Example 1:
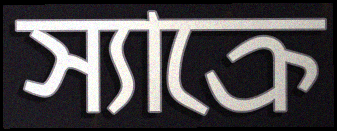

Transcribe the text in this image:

স্যাক্রে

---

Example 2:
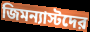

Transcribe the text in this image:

জিমন্যাস্টদের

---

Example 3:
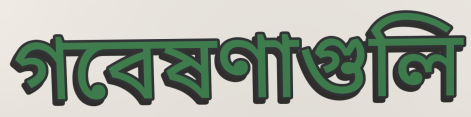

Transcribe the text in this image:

গবেষণাগুলি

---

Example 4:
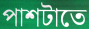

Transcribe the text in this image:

পাশটাতে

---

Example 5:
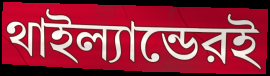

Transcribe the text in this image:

থাইল্যান্ডেরই